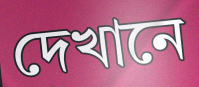
দেখানে